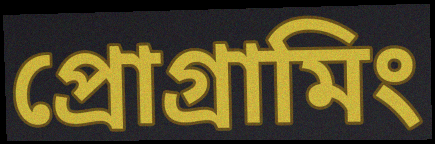
প্ৰোগ্ৰামিং